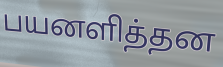
பயனளித்தன